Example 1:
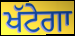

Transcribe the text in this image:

ਖੱਟੇਗਾ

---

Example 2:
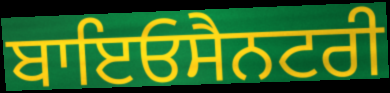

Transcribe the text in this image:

ਬਾਇਓਸੈਨਟਰੀ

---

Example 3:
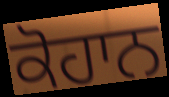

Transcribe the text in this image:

ਕੋਹਾਨ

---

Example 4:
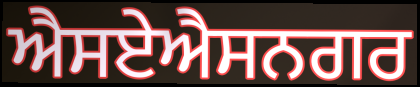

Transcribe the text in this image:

ਐਸਏਐਸਨਗਰ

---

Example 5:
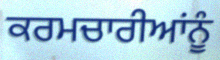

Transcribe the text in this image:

ਕਰਮਚਾਰੀਆਂਨੂੰ